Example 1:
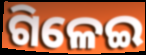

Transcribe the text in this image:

ଗିଳେଇ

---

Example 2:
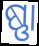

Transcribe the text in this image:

ଷ୍ଣା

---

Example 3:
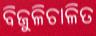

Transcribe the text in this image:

ବିଜୁଳିଚାଳିତ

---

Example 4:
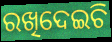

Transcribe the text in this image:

ରଖିଦେଇଚି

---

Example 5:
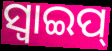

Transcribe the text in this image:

ସ୍ୱାଇପ୍